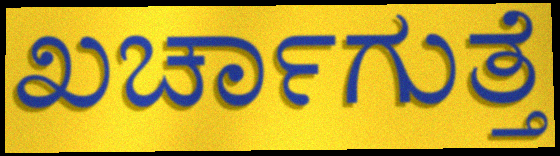
ಖರ್ಚಾಗುತ್ತೆ